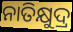
ନାତିକ୍ଷୁଦ୍ର